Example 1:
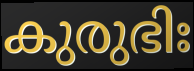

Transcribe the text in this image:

കുരുഭിഃ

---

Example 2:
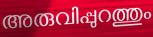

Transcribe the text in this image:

അരുവിപ്പുറത്തും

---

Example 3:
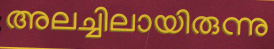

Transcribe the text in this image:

അലച്ചിലായിരുന്നു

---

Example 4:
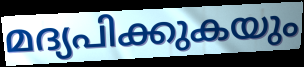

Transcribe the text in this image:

മദ്യപിക്കുകയും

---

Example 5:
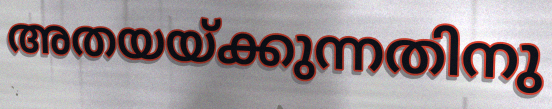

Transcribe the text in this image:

അതയയ്ക്കുന്നതിനു